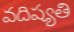
వదిష్యతి